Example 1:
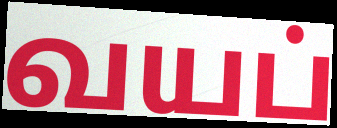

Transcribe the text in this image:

வயப்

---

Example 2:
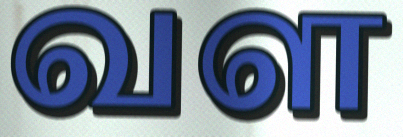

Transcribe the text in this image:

வள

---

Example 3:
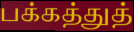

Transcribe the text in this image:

பக்கத்துத்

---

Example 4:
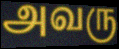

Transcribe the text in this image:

அவரு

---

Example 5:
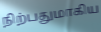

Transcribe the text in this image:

நிற்பதுமாகிய